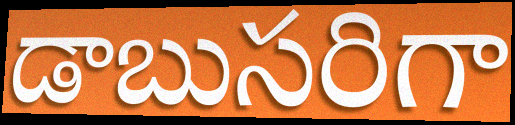
డాబుసరిగా